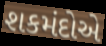
શકમંદોએ